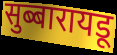
सुब्बारायडू